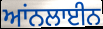
ਆਂਨਲਾਈਨ